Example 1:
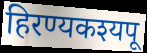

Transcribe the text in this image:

हिरण्यकश्यपू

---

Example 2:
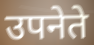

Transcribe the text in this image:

उपनेते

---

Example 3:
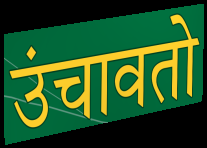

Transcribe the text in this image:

उंचावतो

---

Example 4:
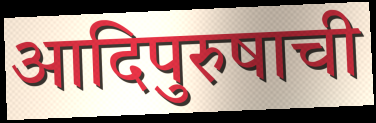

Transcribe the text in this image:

आदिपुरुषाची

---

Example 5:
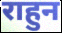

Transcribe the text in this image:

राहुन